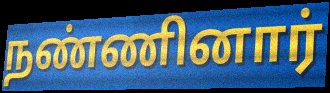
நண்ணினார்